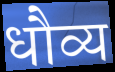
धौव्य